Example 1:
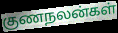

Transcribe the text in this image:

குணநலன்கள்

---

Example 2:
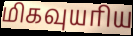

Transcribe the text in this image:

மிகவுயரிய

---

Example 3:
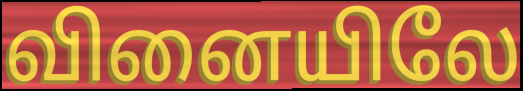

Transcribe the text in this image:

வினையிலே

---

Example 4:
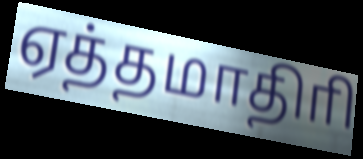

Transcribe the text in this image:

ஏத்தமாதிரி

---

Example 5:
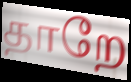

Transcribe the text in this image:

தாறே